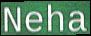
Neha